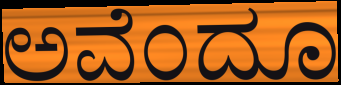
ಅವೆಂದೂ